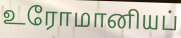
உரோமானியப்